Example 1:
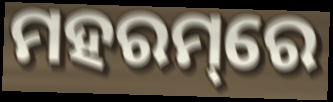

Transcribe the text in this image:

ମହରମ୍‌ରେ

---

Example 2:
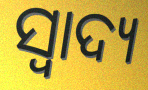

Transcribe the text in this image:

ସ୍ଵାଦ୍ୟ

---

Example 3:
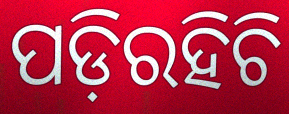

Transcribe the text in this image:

ପଡ଼ିରହିଚି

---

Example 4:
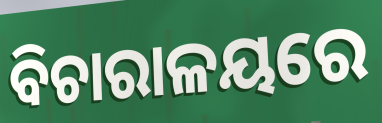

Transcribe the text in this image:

ବିଚାରାଳୟରେ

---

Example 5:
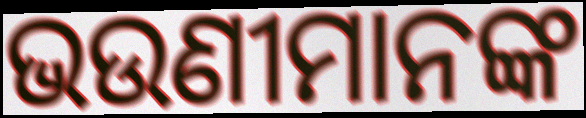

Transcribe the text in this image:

ଭଉଣୀମାନଙ୍କ